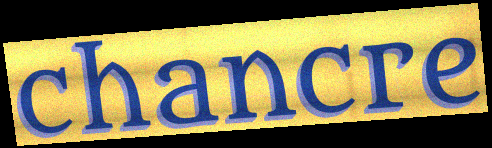
chancre